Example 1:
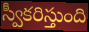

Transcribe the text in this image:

స్వీకరిస్తుంది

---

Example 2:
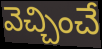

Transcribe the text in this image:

వెచ్చించే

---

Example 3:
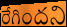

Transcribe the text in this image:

రేగిందని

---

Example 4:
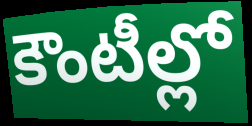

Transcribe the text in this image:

కౌంటీల్లో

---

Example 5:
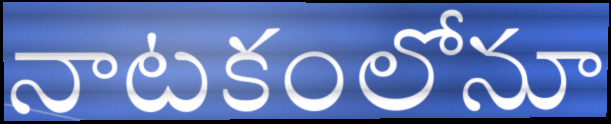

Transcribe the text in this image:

నాటకంలోనూ